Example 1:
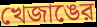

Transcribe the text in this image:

খেজাঙের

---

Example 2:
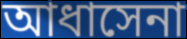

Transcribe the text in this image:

আধাসেনা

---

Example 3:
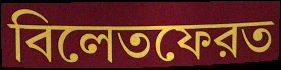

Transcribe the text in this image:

বিলেতফেরত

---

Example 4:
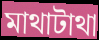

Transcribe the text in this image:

মাথাটাথা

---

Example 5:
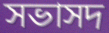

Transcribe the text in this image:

সভাসদ